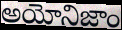
అయోనిజాం